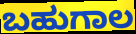
ಬಹುಗಾಲ